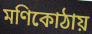
মণিকোঠায়